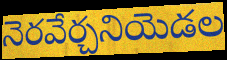
నెరవేర్చనియెడల